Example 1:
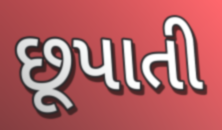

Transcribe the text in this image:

છૂપાતી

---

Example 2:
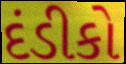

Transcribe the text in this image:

દંડીકો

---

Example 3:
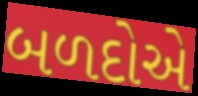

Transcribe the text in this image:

બળદોએ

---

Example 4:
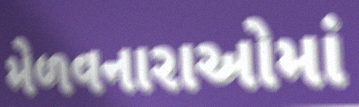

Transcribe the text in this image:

મેળવનારાઓમાં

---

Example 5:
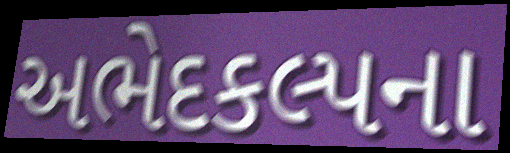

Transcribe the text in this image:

અભેદકલ્પના